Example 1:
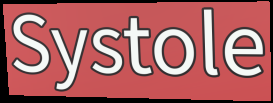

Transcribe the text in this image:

Systole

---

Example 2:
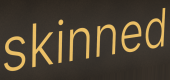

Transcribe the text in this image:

skinned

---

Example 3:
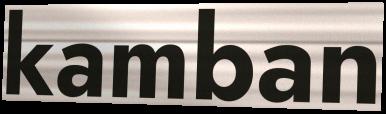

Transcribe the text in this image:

kamban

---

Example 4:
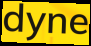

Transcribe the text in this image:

dyne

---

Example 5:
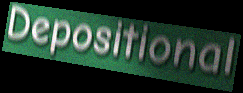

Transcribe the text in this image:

Depositional